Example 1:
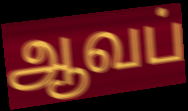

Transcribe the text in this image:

ஆவப்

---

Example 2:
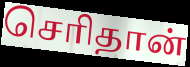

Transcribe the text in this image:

செரிதான்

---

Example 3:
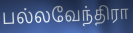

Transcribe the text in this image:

பல்லவேந்திரா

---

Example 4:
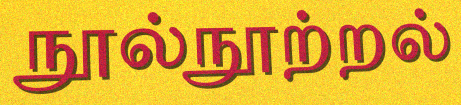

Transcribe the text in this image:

நூல்நூற்றல்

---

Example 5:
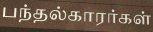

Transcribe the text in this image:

பந்தல்காரர்கள்